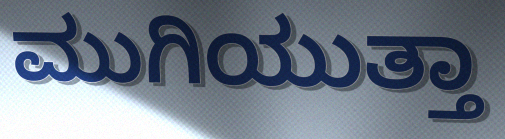
ಮುಗಿಯುತ್ತಾ